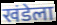
खंडेला